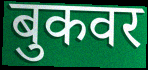
बुकवर